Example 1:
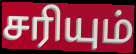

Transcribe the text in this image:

சரியும்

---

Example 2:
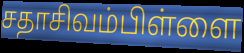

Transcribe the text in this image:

சதாசிவம்பிள்ளை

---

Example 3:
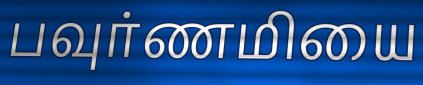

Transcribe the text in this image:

பவுர்ணமியை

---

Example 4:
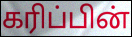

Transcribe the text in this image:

கரிப்பின்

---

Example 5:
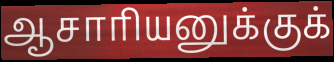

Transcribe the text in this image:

ஆசாரியனுக்குக்